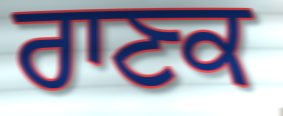
ਰਾਣਕ